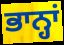
ਭਾਨ੍ਹਾਂ